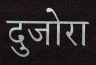
दुजोरा